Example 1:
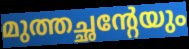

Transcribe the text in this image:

മുത്തച്ഛന്റേയും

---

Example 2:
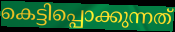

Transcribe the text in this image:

കെട്ടിപ്പൊക്കുന്നത്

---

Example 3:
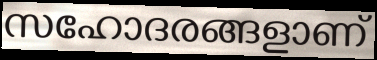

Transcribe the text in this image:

സഹോദരങ്ങളാണ്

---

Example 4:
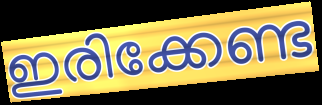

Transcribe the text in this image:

ഇരിക്കേണ്ട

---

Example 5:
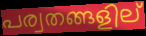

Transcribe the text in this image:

പര്വതങ്ങളില്